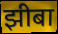
झीबा